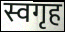
स्वगृह